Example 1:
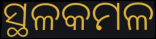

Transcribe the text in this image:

ସ୍ଥଳକମଳ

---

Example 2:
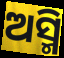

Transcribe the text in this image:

ଅସ୍ମି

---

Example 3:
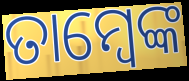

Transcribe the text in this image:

ତାମ୍ବେଙ୍କ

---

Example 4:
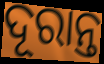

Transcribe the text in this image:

ଦୂରାନ୍ତ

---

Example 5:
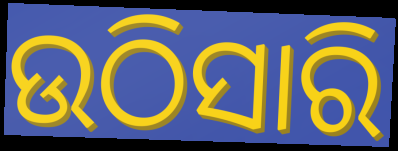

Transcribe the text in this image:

ଉଠିସାରି